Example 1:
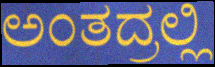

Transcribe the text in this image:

ಅಂತದ್ರಲ್ಲಿ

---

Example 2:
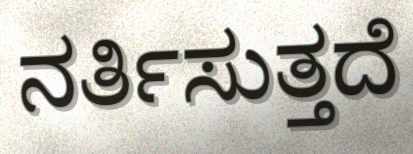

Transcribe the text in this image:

ನರ್ತಿಸುತ್ತದೆ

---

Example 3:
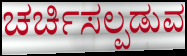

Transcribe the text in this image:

ಚರ್ಚಿಸಲ್ಪಡುವ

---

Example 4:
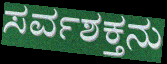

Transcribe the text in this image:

ಸರ್ವಶಕ್ತನು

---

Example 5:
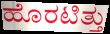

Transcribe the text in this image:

ಹೊರಟಿತ್ತು